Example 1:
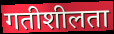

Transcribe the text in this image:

गतीशीलता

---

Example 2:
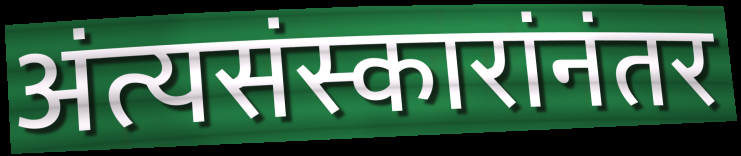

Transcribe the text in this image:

अंत्यसंस्कारांनंतर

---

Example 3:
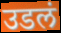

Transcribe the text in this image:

उडलं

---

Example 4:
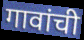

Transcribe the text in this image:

गावांची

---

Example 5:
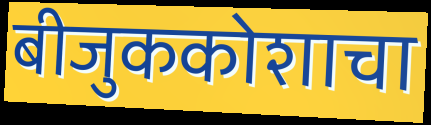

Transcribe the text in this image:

बीजुककोशाचा